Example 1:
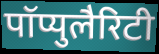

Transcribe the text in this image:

पॉप्युलैरिटी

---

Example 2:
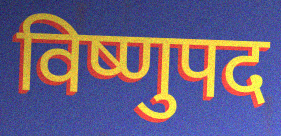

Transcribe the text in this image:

विष्‍णुपद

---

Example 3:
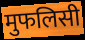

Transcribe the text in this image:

मुफलिसी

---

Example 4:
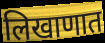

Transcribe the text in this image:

लिखाणात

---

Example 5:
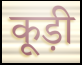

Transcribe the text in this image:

कूड़ी